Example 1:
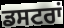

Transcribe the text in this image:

ਡਸਟਰਾਂ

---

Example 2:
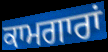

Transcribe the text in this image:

ਕਾਮਗਾਰਾਂ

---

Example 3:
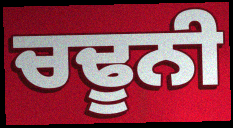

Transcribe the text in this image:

ਚਢੂਨੀ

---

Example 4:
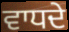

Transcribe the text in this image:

ਵਾਧਦੇ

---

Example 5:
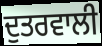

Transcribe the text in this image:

ਦੁਤਰਵਾਲੀ